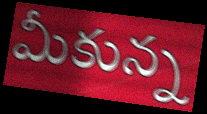
మీకున్న